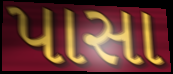
પાસા